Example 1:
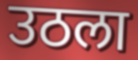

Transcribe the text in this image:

उठला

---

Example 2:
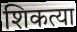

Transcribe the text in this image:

शिकत्या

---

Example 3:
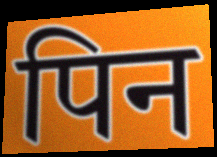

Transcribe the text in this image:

पिन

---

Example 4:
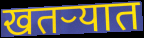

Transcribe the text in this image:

खतऱ्यात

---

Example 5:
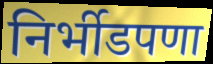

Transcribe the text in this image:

निर्भीडपणा